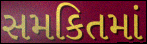
સમકિતમાં